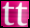
tt